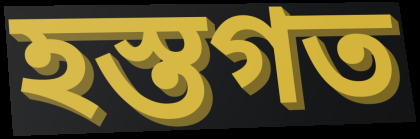
হস্তগত